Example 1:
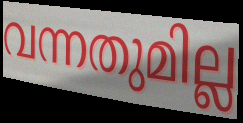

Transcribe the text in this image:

വന്നതുമില്ല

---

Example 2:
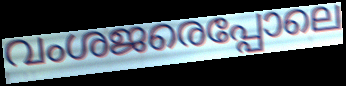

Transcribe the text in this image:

വംശജരെപ്പോലെ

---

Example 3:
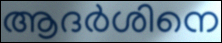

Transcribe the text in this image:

ആദർശിനെ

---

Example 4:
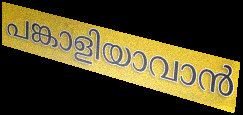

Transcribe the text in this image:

പങ്കാളിയാവാൻ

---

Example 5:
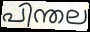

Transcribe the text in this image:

പിന്തല